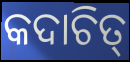
କଦାଚିତ୍